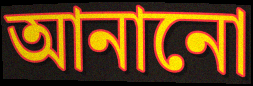
আনানো